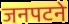
जनपटने